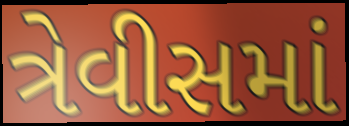
ત્રેવીસમાં